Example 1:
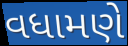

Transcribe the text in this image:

વધામણે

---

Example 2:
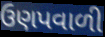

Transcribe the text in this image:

ઉણપવાળી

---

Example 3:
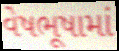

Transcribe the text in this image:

વેષભૂષામાં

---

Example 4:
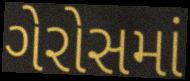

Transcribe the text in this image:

ગેરોસમાં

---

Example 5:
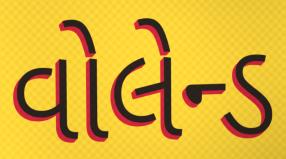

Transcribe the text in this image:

વોલેન્ડ